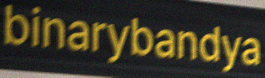
binarybandya